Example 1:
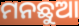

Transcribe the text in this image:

ମନଛୁଆ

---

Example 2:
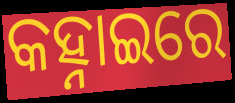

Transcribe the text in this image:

କହ୍ନାଇରେ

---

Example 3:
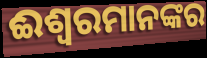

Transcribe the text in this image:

ଈଶ୍ୱରମାନଙ୍କର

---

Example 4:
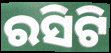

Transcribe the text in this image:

ରସିଟି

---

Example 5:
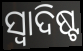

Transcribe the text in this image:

ସ୍ବାଦିଷ୍ଟ